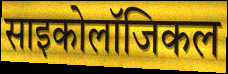
साइकोलॉजिकल